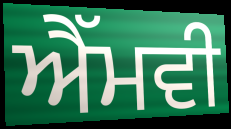
ਐੱਮਵੀ